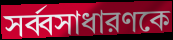
সর্ব্বসাধারণকে